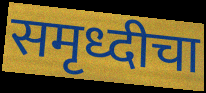
समृध्दीचा